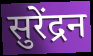
सुरेंद्रन